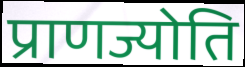
प्राणज्योति